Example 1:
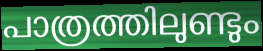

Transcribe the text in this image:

പാത്രത്തിലുണ്ടും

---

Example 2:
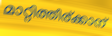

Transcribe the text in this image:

മാറ്റിത്തീര്ക്കാന്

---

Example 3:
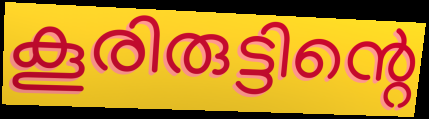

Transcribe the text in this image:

കൂരിരുട്ടിന്റെ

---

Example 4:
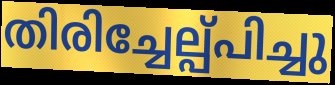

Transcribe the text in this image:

തിരിച്ചേല്പ്പിച്ചു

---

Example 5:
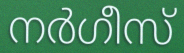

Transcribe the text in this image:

നർഗീസ്